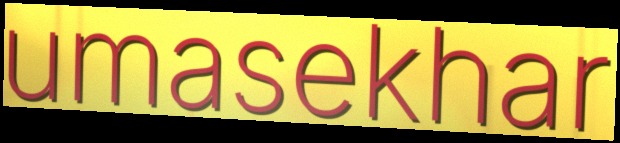
umasekhar